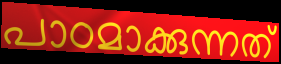
പാഠമാക്കുന്നത്